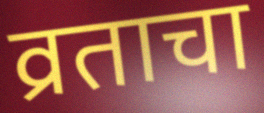
व्रताचा